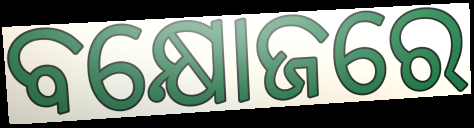
ବକ୍ଷୋଜରେ